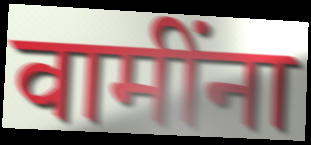
वामींना